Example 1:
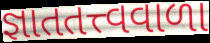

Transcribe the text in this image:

જ્ઞાતતત્ત્વવાળા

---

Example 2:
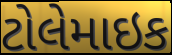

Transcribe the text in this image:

ટોલેમાઇક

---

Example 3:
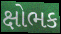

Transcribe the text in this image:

ક્ષોભક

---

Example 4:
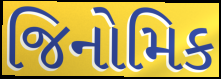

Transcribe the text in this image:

જિનોમિક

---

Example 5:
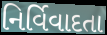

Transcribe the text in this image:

નિર્વિવાદતા